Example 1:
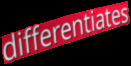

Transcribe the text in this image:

differentiates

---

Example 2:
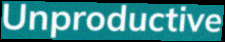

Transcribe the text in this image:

Unproductive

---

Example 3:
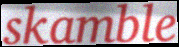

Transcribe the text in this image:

skamble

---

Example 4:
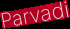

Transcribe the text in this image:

Parvadi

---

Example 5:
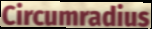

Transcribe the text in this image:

Circumradius